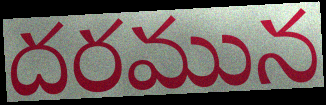
దరమున